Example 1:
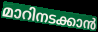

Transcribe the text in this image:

മാറിനടക്കാൻ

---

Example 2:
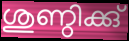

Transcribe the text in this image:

ശുണ്ഠിക്കു്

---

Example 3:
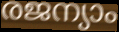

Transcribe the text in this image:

രജന്യാം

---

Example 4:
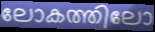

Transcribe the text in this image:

ലോകത്തിലോ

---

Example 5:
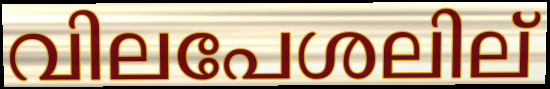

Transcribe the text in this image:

വിലപേശലില്